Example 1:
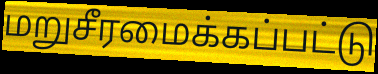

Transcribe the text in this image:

மறுசீரமைக்கப்பட்டு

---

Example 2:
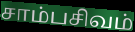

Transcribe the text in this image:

சாம்பசிவம்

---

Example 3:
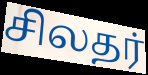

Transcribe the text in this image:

சிலதர்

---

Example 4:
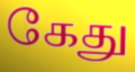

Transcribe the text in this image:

கேது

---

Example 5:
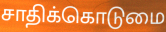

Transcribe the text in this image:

சாதிக்கொடுமை